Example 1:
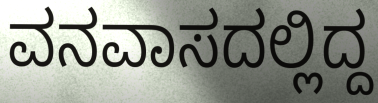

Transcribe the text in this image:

ವನವಾಸದಲ್ಲಿದ್ದ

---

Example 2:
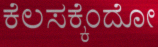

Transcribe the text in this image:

ಕೆಲಸಕ್ಕೆಂದೋ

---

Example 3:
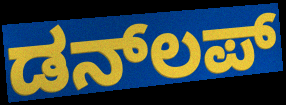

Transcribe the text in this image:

ಡನ್‌ಲಪ್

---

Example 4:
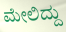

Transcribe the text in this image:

ಮೇಲಿದ್ದು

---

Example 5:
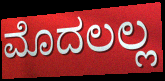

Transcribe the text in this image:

ಮೊದಲಲ್ಲ